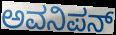
ಅವನಿಪನ್